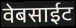
वेबसाईट